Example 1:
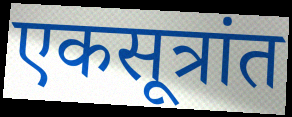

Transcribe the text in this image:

एकसूत्रांत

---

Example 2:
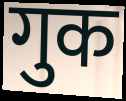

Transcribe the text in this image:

गुक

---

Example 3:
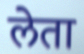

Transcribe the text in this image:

लेता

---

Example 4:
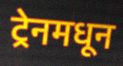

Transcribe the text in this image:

ट्रेनमधून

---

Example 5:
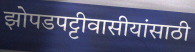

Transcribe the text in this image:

झोपडपट्टीवासीयांसाठी